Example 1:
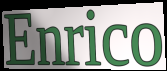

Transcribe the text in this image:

Enrico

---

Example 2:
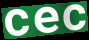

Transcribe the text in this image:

cec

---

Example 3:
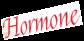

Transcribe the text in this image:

Hormone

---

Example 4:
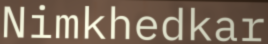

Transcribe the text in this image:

Nimkhedkar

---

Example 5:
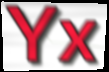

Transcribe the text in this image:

Yx